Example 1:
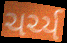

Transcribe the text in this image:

ચર્ચ્ય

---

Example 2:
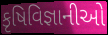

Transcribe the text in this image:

કૃષિવિજ્ઞાનીઓ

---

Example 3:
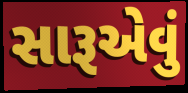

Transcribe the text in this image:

સારૂએવું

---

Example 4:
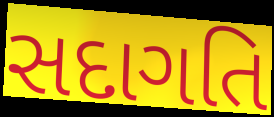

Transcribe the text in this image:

સદાગતિ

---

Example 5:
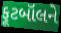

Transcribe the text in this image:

ફૂટબૉલને